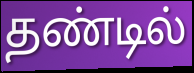
தண்டில்